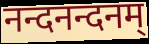
नन्दनन्दनम्